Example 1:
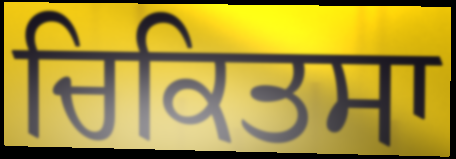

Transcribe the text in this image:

ਚਿਕਿਤਸਾ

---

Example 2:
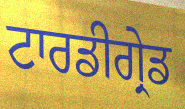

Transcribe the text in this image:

ਟਾਰਡੀਗ੍ਰੇਡ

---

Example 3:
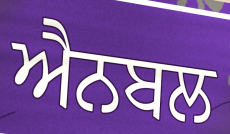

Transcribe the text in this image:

ਐਨਬਲ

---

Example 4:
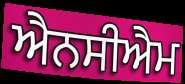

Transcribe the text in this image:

ਐਨਸੀਐਮ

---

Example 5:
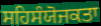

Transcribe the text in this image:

ਸਹਿਸੰਯੋਜਕਤਾ